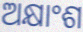
ଅକ୍ଷାଂଶ